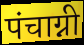
पंचाग्नी